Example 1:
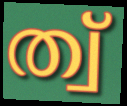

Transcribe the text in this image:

ത്വ്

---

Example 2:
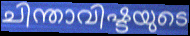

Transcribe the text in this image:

ചിന്താവിഷ്ടയുടെ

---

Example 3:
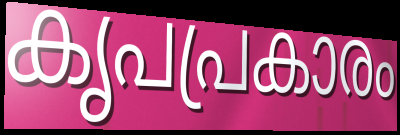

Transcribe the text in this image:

കൃപപ്രകാരം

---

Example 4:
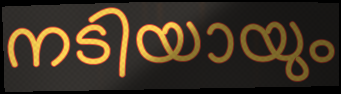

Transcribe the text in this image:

നടിയായും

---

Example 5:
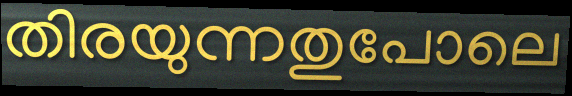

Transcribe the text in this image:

തിരയുന്നതുപോലെ